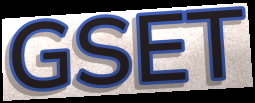
GSET